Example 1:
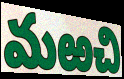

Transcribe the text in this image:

మఱచి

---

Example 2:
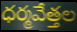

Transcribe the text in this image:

ధర్మవేత్తల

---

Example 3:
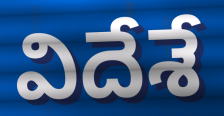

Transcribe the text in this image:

విదేశే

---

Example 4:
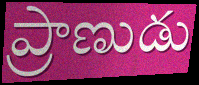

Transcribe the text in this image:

ప్రాణుడు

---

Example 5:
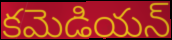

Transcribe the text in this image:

కమెడియన్